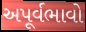
અપૂર્વભાવો